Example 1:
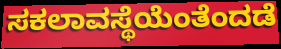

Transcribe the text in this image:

ಸಕಲಾವಸ್ಥೆಯೆಂತೆಂದಡೆ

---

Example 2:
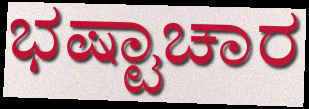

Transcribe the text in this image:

ಭಷ್ಟಾಚಾರ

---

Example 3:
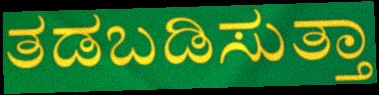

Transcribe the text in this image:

ತಡಬಡಿಸುತ್ತಾ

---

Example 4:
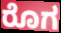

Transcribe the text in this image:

ರೊಗ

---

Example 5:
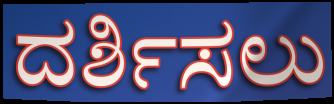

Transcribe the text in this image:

ದರ್ಶಿಸಲು